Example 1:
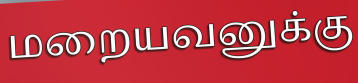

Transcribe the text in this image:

மறையவனுக்கு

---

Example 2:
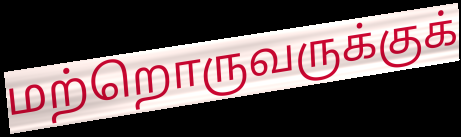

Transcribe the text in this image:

மற்றொருவருக்குக்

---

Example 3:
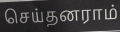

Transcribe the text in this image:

செய்தனராம்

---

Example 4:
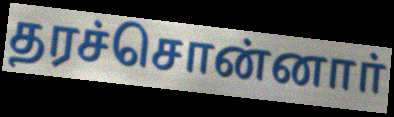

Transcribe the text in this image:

தரச்சொன்னார்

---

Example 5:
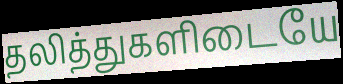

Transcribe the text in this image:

தலித்துகளிடையே